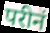
परीनं